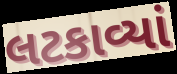
લટકાવ્યાં